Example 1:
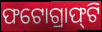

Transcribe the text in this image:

ଫଟୋଗ୍ରାଫ୍‌ଟି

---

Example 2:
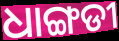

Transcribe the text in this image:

ଧାଙ୍ଗଡୀ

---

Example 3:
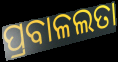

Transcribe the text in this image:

ପ୍ରବାଳଲତା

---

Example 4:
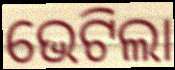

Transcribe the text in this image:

ଭେଟିଲା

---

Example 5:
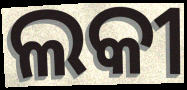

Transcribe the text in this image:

ଲକୀ